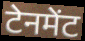
टेनमेंट